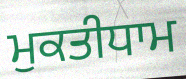
ਮੁਕਤੀਧਾਮ